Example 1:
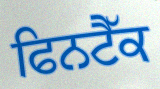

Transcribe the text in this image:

ਫਿਨਟੈੱਕ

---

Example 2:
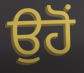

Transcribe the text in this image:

ਉਹੋਂ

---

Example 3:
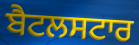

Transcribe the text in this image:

ਬੈਟਲਸਟਾਰ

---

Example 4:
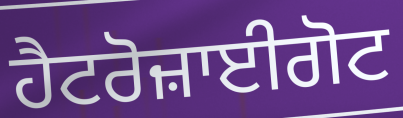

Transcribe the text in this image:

ਹੈਟਰੋਜ਼ਾਈਗੋਟ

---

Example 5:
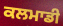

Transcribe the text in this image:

ਕਲਮਾਡੀ